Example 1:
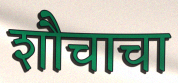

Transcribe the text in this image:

शौचाचा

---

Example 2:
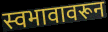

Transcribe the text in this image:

स्वभावावरून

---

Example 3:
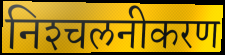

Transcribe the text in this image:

निश्चलनीकरण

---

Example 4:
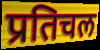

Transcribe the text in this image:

प्रतिचल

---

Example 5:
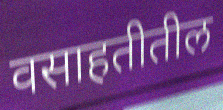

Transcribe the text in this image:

वसाहतीतील